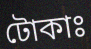
টোকাঃ